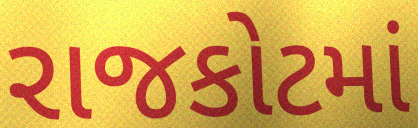
રાજકોટમાં